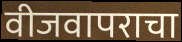
वीजवापराचा